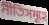
নীতিসমূহে